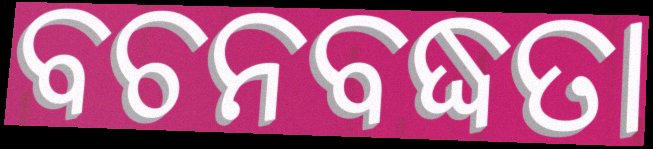
ବଚନବଦ୍ଧତା